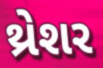
થ્રેશર